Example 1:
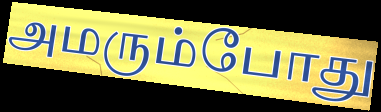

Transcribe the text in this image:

அமரும்போது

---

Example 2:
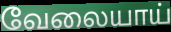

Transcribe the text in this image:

வேலையாய்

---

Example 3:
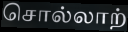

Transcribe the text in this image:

சொல்லாற்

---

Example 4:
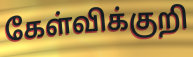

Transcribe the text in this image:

கேள்விக்குறி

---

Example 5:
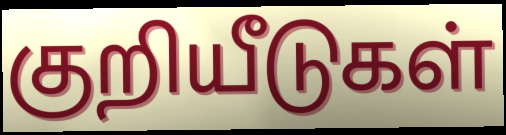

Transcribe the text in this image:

குறியீடுகள்